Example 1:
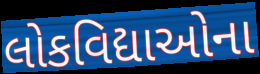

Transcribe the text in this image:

લોકવિદ્યાઓના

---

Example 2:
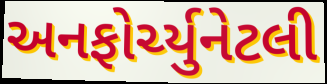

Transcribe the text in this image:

અનફોર્ચ્યુનેટલી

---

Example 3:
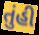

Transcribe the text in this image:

તુંહી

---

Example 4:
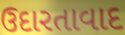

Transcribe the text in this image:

ઉદારતાવાદ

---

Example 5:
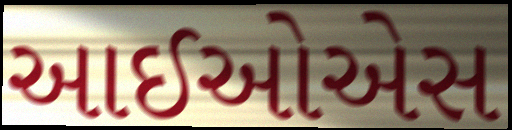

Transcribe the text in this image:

આઈઓએસ